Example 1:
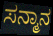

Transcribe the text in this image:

ಸನ್ಮಾನ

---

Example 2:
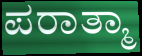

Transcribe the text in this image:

ಪರಾತ್ಮಾ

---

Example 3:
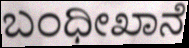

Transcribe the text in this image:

ಬಂಧೀಖಾನೆ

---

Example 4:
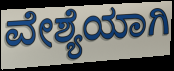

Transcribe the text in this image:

ವೇಶ್ಯೆಯಾಗಿ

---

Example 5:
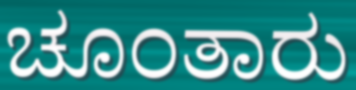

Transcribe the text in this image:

ಚೂಂತಾರು